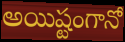
అయిష్టంగానో